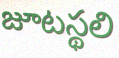
జూటస్థలి